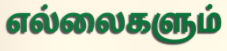
எல்லைகளும்